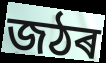
জঠৰ